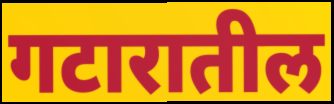
गटारातील